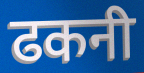
ढकनी